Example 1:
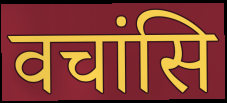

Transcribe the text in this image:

वचांसि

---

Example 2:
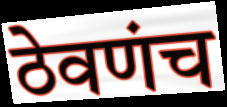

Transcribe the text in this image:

ठेवणंच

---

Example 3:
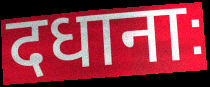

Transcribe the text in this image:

दधानाः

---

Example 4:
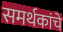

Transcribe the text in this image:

समर्थकांचे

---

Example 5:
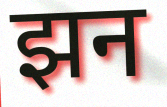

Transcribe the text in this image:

झन